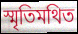
স্মৃতিমথিত